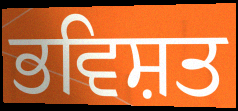
ਭਵਿਸ਼ਤ